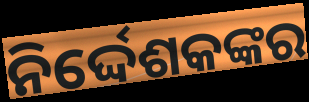
ନିର୍ଦ୍ଦେଶକଙ୍କର